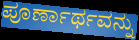
ಪೂರ್ಣಾರ್ಥವನ್ನು